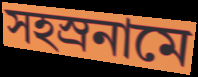
সহস্ৰনামে